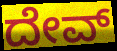
ದೇವ್